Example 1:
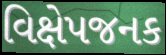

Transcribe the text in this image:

વિક્ષેપજનક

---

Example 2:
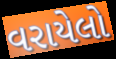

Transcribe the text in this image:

વરાયેલો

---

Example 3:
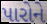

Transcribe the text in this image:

પારોને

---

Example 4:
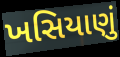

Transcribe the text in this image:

ખસિયાણું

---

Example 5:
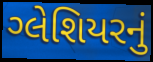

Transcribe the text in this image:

ગ્લેશિયરનું